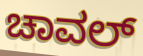
ಚಾವಲ್